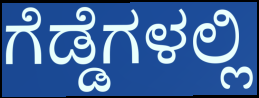
ಗೆಡ್ಡೆಗಳಲ್ಲಿ